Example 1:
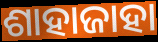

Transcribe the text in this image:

ଶାହାଜାହା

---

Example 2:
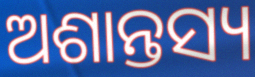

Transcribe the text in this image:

ଅଶାନ୍ତସ୍ୟ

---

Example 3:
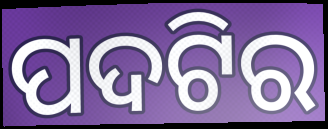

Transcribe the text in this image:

ପଦଟିର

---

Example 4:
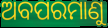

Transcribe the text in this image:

ଅବପରମାଣୁ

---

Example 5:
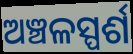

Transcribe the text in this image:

ଅଞ୍ଚଳସ୍ପର୍ଶ